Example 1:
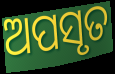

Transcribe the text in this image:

ଅପସୃତ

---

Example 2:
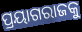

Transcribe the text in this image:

ପ୍ରୟାଗରାଜକୁ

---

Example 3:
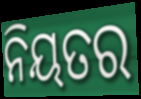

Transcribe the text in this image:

ନିୟତର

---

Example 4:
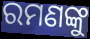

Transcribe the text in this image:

ରମଣଙ୍କୁ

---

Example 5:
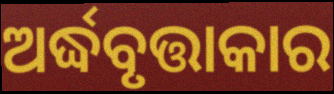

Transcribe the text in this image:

ଅର୍ଦ୍ଧବୃତ୍ତାକାର